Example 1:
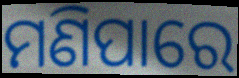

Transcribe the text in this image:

ମଣିପାରେ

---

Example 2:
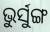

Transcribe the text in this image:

ଭୁର୍ସୁଙ୍ଗ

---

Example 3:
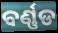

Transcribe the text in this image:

ବର୍ଣ୍ଣଡ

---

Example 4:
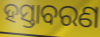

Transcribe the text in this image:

ହସ୍ତାବରଣ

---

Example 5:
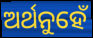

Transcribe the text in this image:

ଅର୍ଥନୁହେଁ